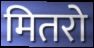
मितरो